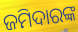
ଜମିଦାରଙ୍କ